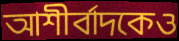
আশীর্বাদকেও